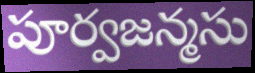
పూర్వజన్మసు